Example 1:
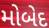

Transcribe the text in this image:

મોબેદ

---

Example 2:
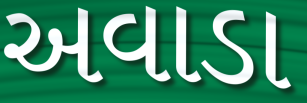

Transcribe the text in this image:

અવાડા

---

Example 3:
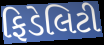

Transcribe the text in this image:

ફિડેલિટી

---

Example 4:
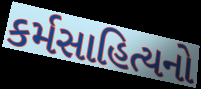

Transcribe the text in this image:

કર્મસાહિત્યનો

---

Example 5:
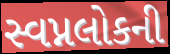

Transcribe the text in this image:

સ્વપ્નલોકની